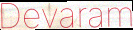
Devaram